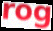
rog